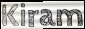
Kiram